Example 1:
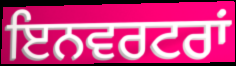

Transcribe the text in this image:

ਇਨਵਰਟਰਾਂ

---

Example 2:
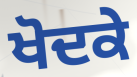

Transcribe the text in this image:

ਖੋਦਕੇ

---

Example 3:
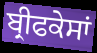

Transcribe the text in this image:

ਬ੍ਰੀਫਕੇਸਾਂ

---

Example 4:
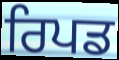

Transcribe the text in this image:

ਰਿਪਡ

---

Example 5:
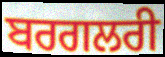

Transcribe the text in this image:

ਬਰਗਲਰੀ